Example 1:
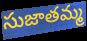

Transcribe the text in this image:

సుజాతమ్మ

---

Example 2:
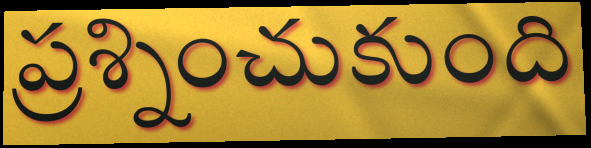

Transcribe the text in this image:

ప్రశ్నించుకుంది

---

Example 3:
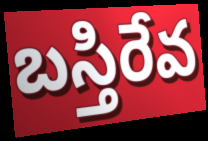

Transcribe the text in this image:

బస్తిరేవ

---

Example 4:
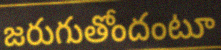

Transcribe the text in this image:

జరుగుతోందంటూ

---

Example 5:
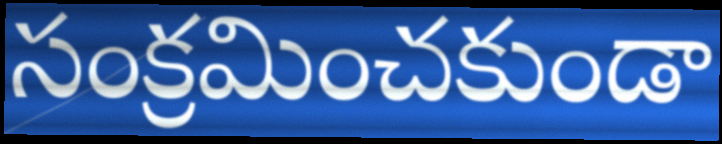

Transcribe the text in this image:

సంక్రమించకుండా